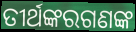
ତୀର୍ଥଙ୍କରଗଣଙ୍କ